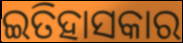
ଇତିହାସକାର